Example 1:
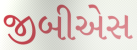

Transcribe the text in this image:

જીબીએસ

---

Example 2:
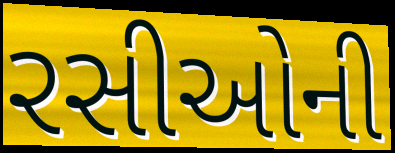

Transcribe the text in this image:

રસીઓની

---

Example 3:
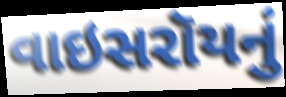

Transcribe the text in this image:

વાઇસરૉયનું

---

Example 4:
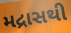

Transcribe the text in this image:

મદ્રાસથી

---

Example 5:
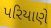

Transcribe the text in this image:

પરિયાણે